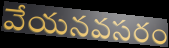
వేయనవసరం